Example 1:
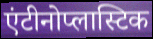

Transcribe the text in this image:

एंटीनोप्लास्टिक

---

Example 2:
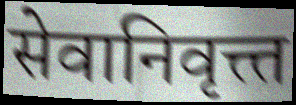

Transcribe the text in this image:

सेवानिवृत्त्त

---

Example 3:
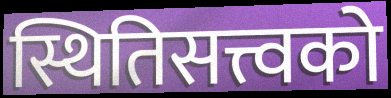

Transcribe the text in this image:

स्थितिसत्त्वको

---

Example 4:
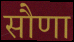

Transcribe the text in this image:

सौणा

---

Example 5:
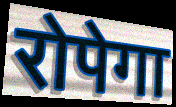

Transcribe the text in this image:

रोपेगा